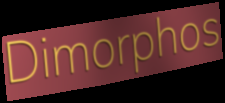
Dimorphos